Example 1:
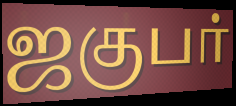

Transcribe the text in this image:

ஜகுபர்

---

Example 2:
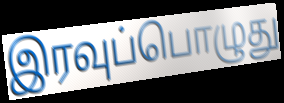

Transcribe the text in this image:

இரவுப்பொழுது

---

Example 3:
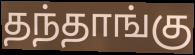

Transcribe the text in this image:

தந்தாங்கு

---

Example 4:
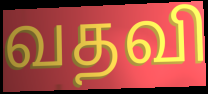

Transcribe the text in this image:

வதவி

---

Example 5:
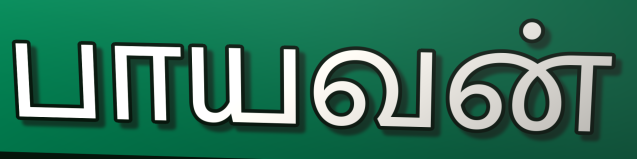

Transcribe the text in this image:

பாயவன்